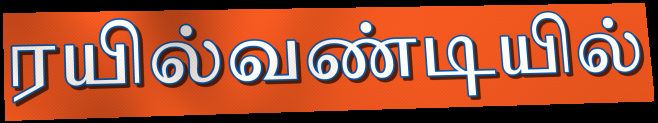
ரயில்வண்டியில்